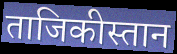
ताजिकीस्तान